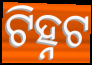
ଟିହ୍ନଟ